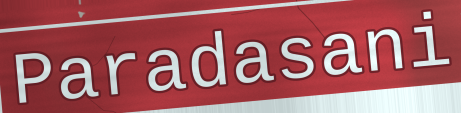
Paradasani